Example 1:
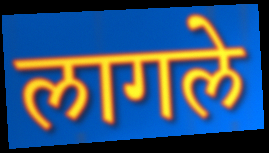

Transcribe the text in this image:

लागले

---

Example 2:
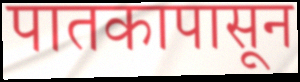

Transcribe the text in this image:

पातकापासून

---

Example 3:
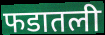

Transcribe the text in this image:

फडातली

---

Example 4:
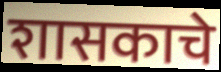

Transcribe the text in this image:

शासकाचे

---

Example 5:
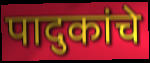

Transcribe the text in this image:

पादुकांचे